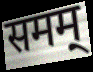
समम्